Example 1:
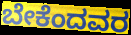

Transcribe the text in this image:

ಬೇಕೆಂದವರ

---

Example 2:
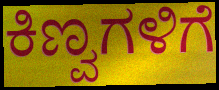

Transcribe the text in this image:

ಕಿಣ್ವಗಳಿಗೆ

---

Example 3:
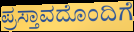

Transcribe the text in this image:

ಪ್ರಸ್ತಾವದೊಂದಿಗೆ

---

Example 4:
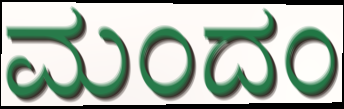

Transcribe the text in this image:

ಮಂದಂ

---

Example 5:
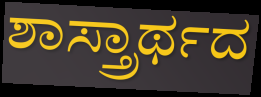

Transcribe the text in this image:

ಶಾಸ್ತ್ರಾರ್ಥದ